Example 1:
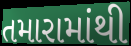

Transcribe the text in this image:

તમારામાંથી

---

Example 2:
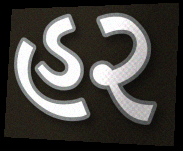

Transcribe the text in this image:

હર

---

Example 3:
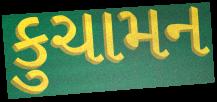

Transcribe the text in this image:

કુચામન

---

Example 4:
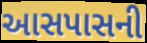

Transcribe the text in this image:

આસપાસની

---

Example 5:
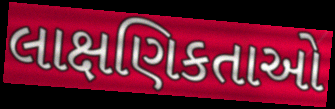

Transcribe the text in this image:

લાક્ષણિકતાઓ